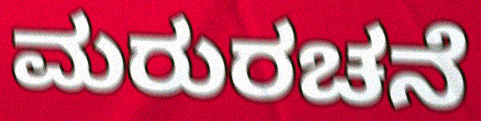
ಮರುರಚನೆ